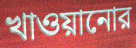
খাওয়ানোর